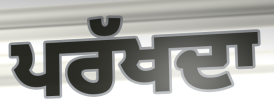
ਪਰੱਖਦਾ